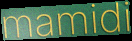
mamidi